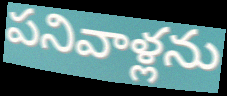
పనివాళ్లను